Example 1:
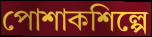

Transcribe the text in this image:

পোশাকশিল্পে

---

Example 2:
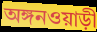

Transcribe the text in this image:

অঙ্গনওয়াড়ী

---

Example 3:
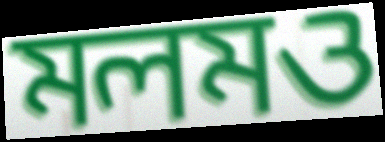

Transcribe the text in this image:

মলমও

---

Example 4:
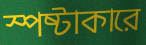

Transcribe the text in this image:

স্পষ্টাকারে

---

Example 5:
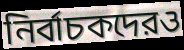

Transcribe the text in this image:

নির্বাচকদেরও